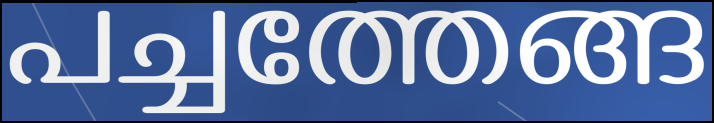
പച്ചത്തേങ്ങ